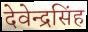
देवेन्द्रसिंह